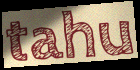
tahu